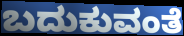
ಬದುಕುವಂತೆ